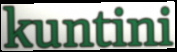
kuntini